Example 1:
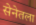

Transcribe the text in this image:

सेनेतला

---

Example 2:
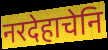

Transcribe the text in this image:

नरदेहाचेनि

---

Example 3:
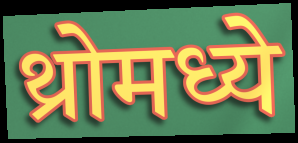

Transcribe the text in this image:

थ्रोमध्ये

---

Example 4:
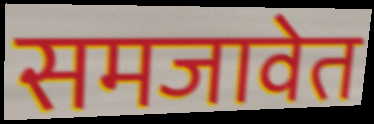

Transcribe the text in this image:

समजावेत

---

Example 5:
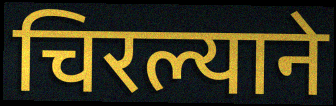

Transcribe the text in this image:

चिरल्याने